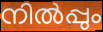
നിൽപ്പും